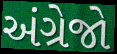
અંગ્રેજો